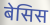
बेसिस